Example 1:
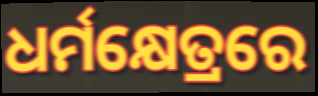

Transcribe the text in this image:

ଧର୍ମକ୍ଷେତ୍ରରେ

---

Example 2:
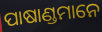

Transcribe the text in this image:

ପାଷାଣ୍ଡମାନେ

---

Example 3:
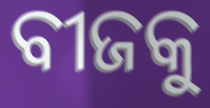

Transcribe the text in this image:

ବୀଜକୁ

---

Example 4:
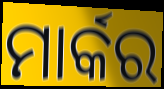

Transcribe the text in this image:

ମାର୍କର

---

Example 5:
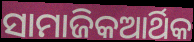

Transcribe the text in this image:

ସାମାଜିକଆର୍ଥିକ